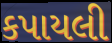
કપાયલી